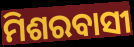
ମିଶରବାସୀ